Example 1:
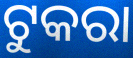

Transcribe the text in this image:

ଟୁକରା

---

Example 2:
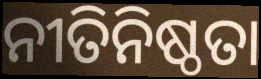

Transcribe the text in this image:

ନୀତିନିଷ୍ଠତା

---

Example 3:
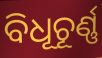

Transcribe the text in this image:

ବିଧୂଚୂର୍ଣ୍ଣ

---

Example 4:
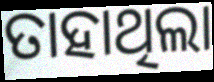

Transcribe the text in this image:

ତାହାଥିଲା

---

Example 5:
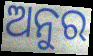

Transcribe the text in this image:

ଅନୁର